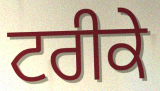
ਟਰੀਕੇ